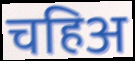
चहिअ